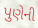
પુણેની